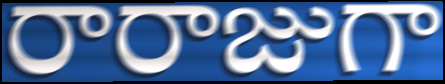
రారాజుగా